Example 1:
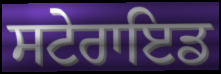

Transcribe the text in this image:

ਸਟੇਰਾਇਡ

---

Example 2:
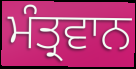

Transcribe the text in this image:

ਮੰਤ੍ਰਵਾਨ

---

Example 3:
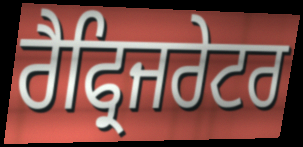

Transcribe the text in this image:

ਰੈਫ੍ਰਿਜਰੇਟਰ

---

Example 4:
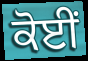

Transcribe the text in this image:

ਕੋਈਂ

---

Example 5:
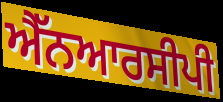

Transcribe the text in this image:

ਐੱਨਆਰਸੀਪੀ